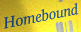
Homebound